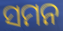
ସମନ